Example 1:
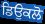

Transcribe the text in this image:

ਡਿਉਕਲੋ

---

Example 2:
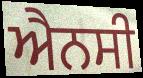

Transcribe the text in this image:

ਐਨਸੀ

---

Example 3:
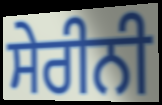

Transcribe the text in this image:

ਸੇਰੀਨੀ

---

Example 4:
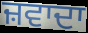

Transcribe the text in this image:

ਜ਼ਵਾਦਾ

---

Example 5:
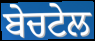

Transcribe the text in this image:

ਬੇਚਟੇਲ